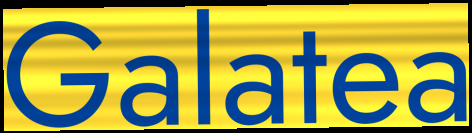
Galatea